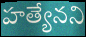
హత్యేనని